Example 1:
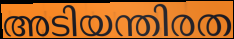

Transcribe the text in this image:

അടിയന്തിരത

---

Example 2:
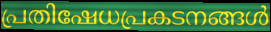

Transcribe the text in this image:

പ്രതിഷേധപ്രകടനങ്ങൾ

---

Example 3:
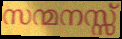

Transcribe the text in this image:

സന്മനസ്സ്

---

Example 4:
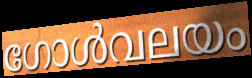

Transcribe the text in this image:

ഗോൾവലയം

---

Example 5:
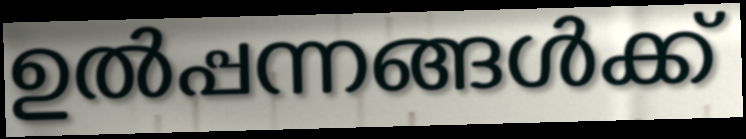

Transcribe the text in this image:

ഉൽപ്പന്നങ്ങൾക്ക്